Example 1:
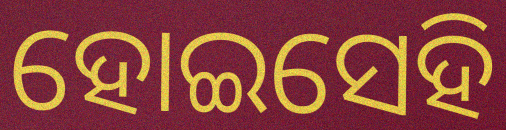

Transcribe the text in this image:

ହୋଇସେହି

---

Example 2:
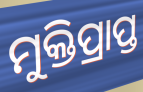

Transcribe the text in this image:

ମୁକ୍ତିପ୍ରାପ୍ତ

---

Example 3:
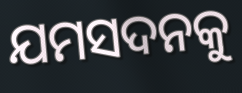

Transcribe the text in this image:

ଯମସଦନକୁ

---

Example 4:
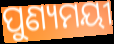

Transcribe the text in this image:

ପୁଣ୍ୟମୟୀ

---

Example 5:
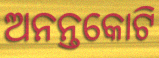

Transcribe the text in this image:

ଅନନ୍ତକୋଟି